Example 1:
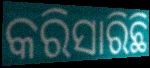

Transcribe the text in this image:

କରିସାରିଛି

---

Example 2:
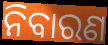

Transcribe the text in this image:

ନିବାରଣ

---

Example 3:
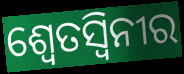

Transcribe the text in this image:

ଶ୍ୱେତସ୍ୱିନୀର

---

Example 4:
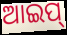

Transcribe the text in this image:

ଆଇପ୍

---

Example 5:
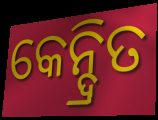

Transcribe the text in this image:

କେନ୍ଦ୍ରିତ